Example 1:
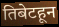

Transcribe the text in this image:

तिबेटहून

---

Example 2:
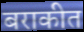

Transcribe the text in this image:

बराकीत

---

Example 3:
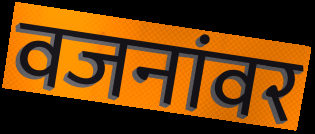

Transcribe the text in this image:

वजनांवर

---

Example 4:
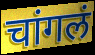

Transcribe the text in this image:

चांगलं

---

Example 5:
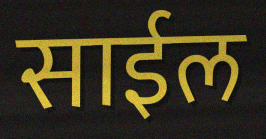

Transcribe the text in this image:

साईल